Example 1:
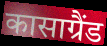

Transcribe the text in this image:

कासाग्रैंड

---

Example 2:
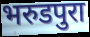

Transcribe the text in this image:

भरुडपुरा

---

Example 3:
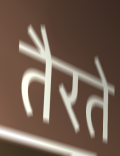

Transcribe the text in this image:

तैरते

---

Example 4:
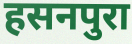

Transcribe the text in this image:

हसनपुरा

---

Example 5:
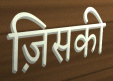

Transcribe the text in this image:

ज़िसकी